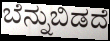
ಬೆನ್ನುಬಿಡದೆ